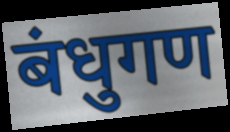
बंधुगण